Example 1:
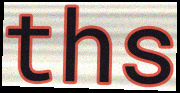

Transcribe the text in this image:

ths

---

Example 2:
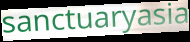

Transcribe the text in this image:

sanctuaryasia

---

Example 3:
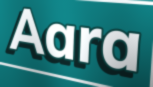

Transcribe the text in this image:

Aara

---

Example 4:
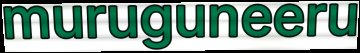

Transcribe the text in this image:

muruguneeru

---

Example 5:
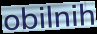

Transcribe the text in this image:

obilnih